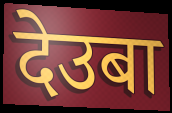
देउबा